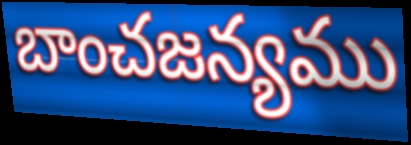
బాంచజన్యము